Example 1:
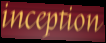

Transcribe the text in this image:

inception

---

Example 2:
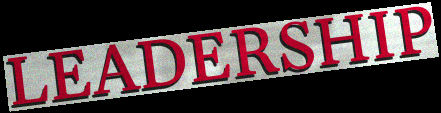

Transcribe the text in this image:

LEADERSHIP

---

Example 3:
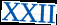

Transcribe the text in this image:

XXII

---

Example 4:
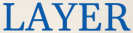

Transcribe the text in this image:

LAYER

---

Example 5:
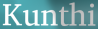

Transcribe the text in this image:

Kunthi